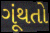
ગૂંથતો